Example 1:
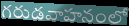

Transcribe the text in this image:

గరుడవాహనంలో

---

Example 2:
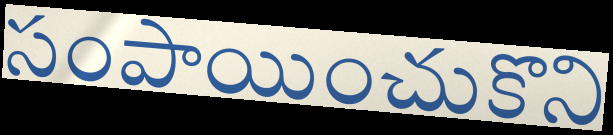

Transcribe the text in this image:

సంపాయించుకొని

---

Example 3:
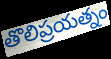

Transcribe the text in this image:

తొలిప్రయత్నం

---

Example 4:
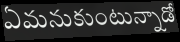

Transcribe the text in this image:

ఏమనుకుంటున్నాడో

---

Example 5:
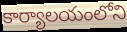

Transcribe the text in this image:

కార్యాలయంలోని